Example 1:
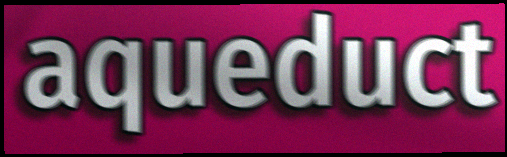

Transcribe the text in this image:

aqueduct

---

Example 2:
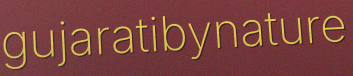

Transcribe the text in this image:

gujaratibynature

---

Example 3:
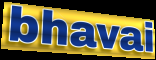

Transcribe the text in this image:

bhavai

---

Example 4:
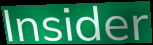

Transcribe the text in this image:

Insider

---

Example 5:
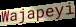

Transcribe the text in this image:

Wajapeyi